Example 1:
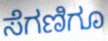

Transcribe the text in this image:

ಸೆಗಣಿಗೂ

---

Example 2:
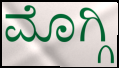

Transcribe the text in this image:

ಮೊಗ್ಗಿ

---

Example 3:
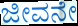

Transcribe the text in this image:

ಜೀವನೇ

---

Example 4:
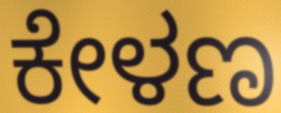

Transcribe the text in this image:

ಕೇಳಣ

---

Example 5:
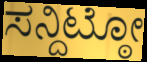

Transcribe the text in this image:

ಸನ್ದಿಟ್ಠೋ